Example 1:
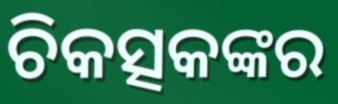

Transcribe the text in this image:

ଚିକତ୍ସକଙ୍କର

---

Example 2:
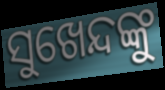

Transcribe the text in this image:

ସୁଖେନ୍ଦଙ୍କୁ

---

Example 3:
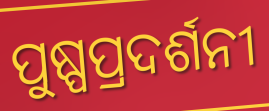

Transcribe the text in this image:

ପୁଷ୍ପପ୍ରଦର୍ଶନୀ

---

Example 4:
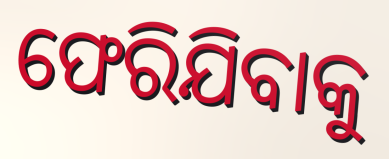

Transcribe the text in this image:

ଫେରିଯିବାକୁ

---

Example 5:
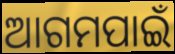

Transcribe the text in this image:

ଆଗମପାଇଁ